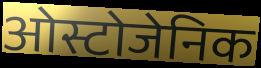
ओस्टोजेनिक